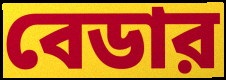
বেডার